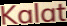
Kalat